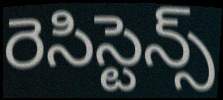
రెసిస్టెన్స్